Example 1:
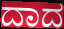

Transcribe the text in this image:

ದಾದ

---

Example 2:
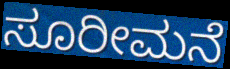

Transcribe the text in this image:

ಸೂರೀಮನೆ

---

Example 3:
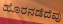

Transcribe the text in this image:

ಹೊರನಡೆದೆವು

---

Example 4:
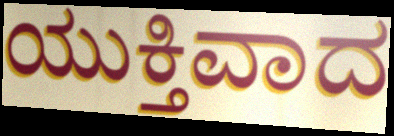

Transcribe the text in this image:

ಯುಕ್ತಿವಾದ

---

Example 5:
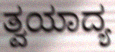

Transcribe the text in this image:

ತ್ವಯಾದ್ಯ